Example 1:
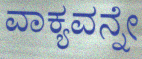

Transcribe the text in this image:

ವಾಕ್ಯವನ್ನೇ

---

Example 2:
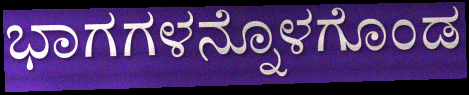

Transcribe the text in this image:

ಭಾಗಗಳನ್ನೊಳಗೊಂಡ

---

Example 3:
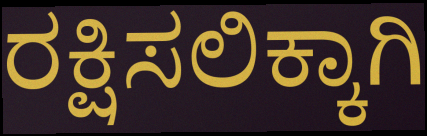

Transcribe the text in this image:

ರಕ್ಷಿಸಲಿಕ್ಕಾಗಿ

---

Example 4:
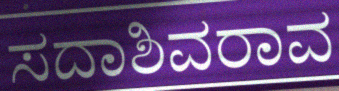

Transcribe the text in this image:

ಸದಾಶಿವರಾವ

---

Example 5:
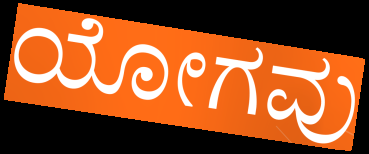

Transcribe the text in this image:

ಯೋಗವು